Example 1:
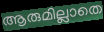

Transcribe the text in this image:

ആരുമില്ലാതെ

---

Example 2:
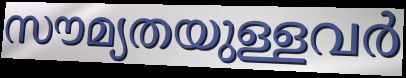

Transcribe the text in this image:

സൗമ്യതയുള്ളവർ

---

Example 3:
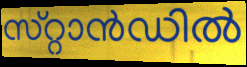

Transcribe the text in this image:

സ്‌റ്റാൻഡിൽ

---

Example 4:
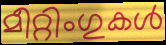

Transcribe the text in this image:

മീറ്റിംഗുകൾ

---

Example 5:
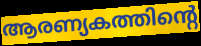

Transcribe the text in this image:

ആരണ്യകത്തിന്റെ